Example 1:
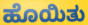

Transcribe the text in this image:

ಹೊಯಿತು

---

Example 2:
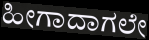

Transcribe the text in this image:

ಹೀಗಾದಾಗಲೇ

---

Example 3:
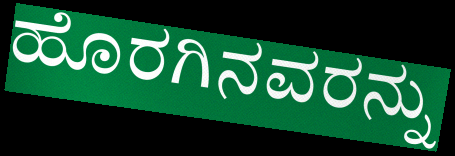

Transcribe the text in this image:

ಹೊರಗಿನವರನ್ನು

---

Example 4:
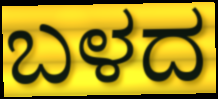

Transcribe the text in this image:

ಬಳದ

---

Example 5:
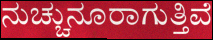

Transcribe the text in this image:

ನುಚ್ಚುನೂರಾಗುತ್ತಿವೆ